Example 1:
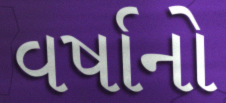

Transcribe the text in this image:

વર્ષાનો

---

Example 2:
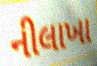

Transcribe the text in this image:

નીલાખા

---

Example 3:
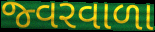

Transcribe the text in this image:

જ્વરવાળા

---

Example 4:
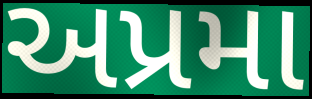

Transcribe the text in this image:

અપ્રમા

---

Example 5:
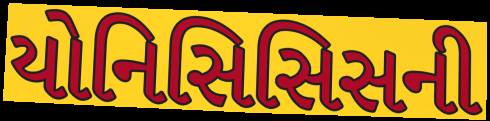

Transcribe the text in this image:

યોનિસિસિસની